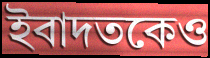
ইবাদতকেও